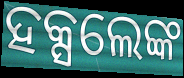
ହକ୍ସଲେଙ୍କ